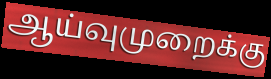
ஆய்வுமுறைக்கு